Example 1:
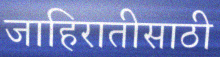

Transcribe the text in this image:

जाहिरातीसाठी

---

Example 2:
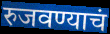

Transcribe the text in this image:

रुजवण्याचं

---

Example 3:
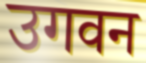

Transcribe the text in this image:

उगवन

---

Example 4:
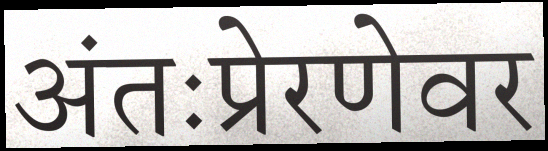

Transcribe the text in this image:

अंतःप्रेरणेवर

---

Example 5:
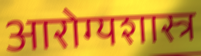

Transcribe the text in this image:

आरोग्यशास्त्र